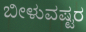
ಬೀಳುವಷ್ಟರ